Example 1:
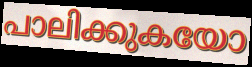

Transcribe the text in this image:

പാലിക്കുകയോ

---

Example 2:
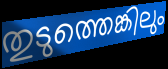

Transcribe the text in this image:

തുടുത്തെങ്കിലും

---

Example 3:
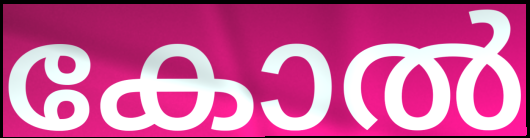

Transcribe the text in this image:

കോൽ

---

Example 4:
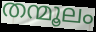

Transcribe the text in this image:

തന്മൂലം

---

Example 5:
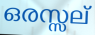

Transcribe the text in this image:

ഒരസ്സല്